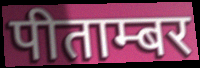
पीताम्बर